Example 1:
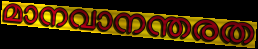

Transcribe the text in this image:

മാനവാനന്തരത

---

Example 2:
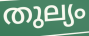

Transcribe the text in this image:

തുല്യം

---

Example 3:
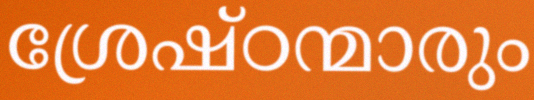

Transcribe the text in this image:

ശ്രേഷ്ഠന്മാരും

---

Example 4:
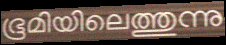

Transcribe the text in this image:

ഭൂമിയിലെത്തുന്നു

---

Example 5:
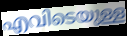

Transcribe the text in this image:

എവിടെയുള്ള